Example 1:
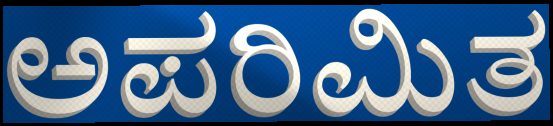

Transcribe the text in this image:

ಅಪರಿಮಿತ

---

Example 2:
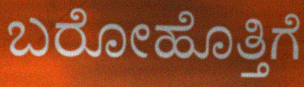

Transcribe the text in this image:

ಬರೋಹೊತ್ತಿಗೆ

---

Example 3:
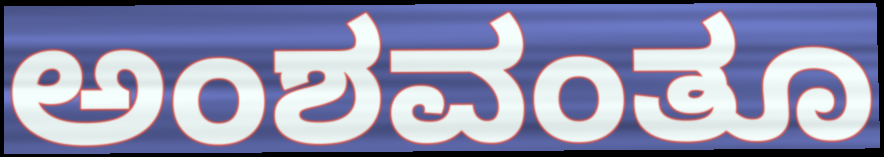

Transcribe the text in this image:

ಅಂಶವಂತೂ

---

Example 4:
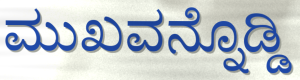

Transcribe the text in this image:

ಮುಖವನ್ನೊಡ್ಡಿ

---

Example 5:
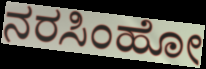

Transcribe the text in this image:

ನರಸಿಂಹೋ